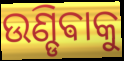
ଉଣ୍ଡିଵାକୁ